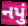
નપું